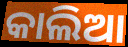
କାଲିଆ